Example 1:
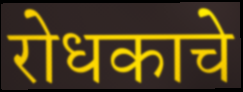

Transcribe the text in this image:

रोधकाचे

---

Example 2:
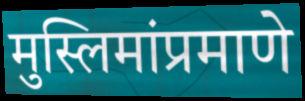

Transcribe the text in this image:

मुस्लिमांप्रमाणे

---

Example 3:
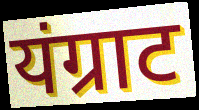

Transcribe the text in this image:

यंग्राट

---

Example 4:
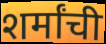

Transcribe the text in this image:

शर्मांची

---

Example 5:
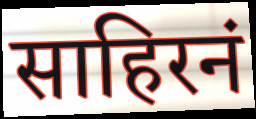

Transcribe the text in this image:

साहिरनं